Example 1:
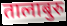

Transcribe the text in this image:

तालाबुरु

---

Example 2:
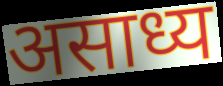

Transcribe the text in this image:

असाध्य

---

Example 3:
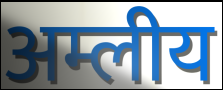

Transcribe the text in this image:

अम्लीय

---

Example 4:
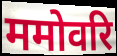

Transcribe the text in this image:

ममोवरि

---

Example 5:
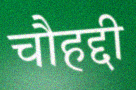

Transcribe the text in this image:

चौहद्दी